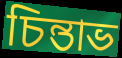
চিন্তাভ